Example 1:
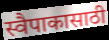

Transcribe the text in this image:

स्वैपाकासाठी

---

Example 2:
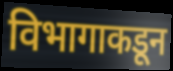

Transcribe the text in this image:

विभागाकडून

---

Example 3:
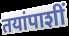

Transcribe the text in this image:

तयांपाशीं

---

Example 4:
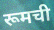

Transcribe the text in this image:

रूमची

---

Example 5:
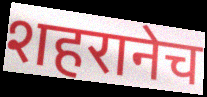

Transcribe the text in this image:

शहरानेच